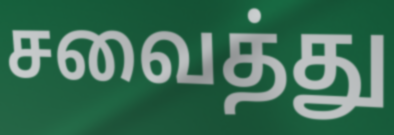
சவைத்து